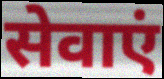
सेवाएं